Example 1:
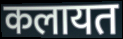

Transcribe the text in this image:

कलायत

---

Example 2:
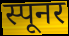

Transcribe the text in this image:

स्पूनर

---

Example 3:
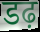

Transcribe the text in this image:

डढ़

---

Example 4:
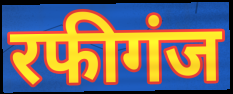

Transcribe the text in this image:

रफीगंज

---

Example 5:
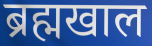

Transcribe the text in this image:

ब्रह्मखाल